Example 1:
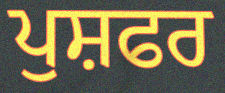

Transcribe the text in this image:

ਪੁਸ਼ਫਰ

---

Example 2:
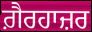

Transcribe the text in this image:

ਗ਼ੈਰਹਾਜ਼ਰ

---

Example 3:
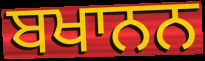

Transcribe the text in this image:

ਬਖਾਨਨ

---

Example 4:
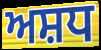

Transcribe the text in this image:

ਅਸ਼ਧ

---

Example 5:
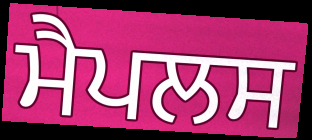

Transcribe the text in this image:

ਮੈਪਲਸ